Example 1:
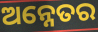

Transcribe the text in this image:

ଅନ୍ନେତର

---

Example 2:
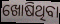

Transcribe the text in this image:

ଖୋଷିଥିବା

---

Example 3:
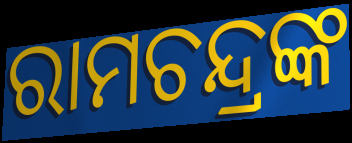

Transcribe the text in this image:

ରାମଚନ୍ଦ୍ରଙ୍କ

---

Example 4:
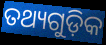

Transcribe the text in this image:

ତଥ୍ୟଗୁଡ଼ିକ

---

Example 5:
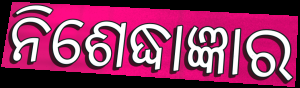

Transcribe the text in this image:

ନିଶେଦ୍ଧାଜ୍ଞାର